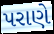
પરાણે